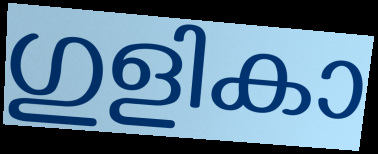
ഗുളികാ